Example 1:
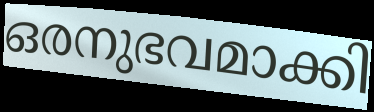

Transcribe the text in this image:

ഒരനുഭവമാക്കി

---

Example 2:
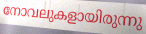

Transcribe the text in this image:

നോവലുകളായിരുന്നു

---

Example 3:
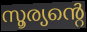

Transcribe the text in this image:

സൂര്യന്റെ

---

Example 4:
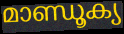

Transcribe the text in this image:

മാണ്ഡൂക്യ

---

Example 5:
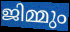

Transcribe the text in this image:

ജിമ്മും